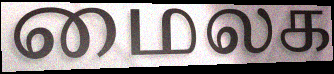
மைலக